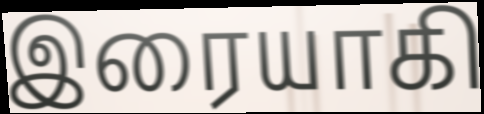
இரையாகி